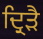
ਦ੍ਰਿੜੈ